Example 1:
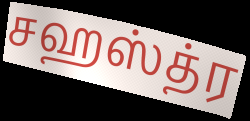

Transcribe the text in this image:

சஹஸ்த்ர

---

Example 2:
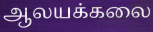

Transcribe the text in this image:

ஆலயக்கலை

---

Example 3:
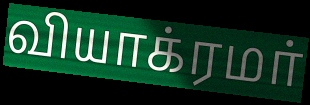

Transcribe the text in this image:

வியாக்ரமர்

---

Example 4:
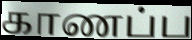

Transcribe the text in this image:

காணப்ப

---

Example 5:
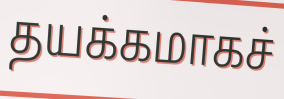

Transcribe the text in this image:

தயக்கமாகச்